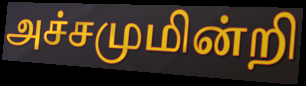
அச்சமுமின்றி